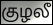
குழலீ